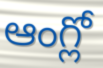
ఆంగ్లో